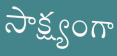
సాక్ష్యంగా